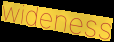
wideness